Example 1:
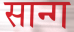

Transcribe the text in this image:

सान्ग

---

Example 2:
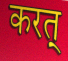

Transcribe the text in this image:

करत्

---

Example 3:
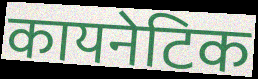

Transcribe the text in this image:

कायनेटिक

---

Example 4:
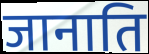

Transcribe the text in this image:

जानाति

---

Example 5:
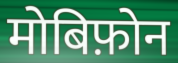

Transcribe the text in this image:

मोबिफ़ोन